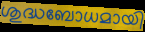
ശുദ്ധബോധമായി